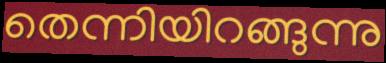
തെന്നിയിറങ്ങുന്നു